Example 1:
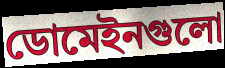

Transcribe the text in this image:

ডোমেইনগুলো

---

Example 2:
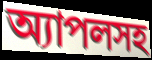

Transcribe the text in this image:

অ্যাপলসহ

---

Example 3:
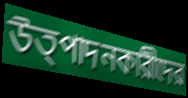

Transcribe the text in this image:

উত্পাদনকারীদের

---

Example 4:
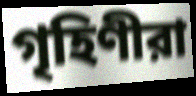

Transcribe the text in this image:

গৃহিণীরা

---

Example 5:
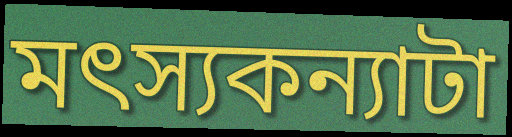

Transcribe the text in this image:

মৎস্যকন্যাটা